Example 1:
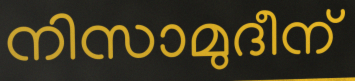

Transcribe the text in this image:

നിസാമുദീന്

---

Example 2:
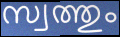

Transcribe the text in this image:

സ്വത്തും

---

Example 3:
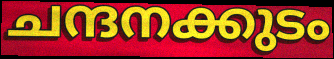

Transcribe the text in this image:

ചന്ദനക്കുടം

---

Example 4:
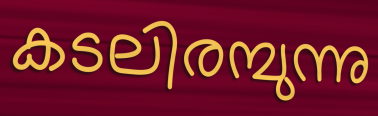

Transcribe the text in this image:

കടലിരമ്പുന്നു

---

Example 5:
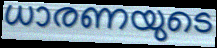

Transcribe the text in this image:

ധാരണയുടെ